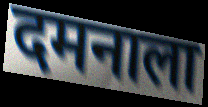
दमनाला